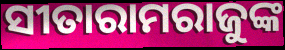
ସୀତାରାମରାଜୁଙ୍କ